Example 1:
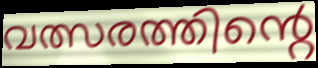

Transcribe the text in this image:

വത്സരത്തിന്റെ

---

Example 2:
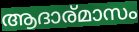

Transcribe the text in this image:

ആദാര്മാസം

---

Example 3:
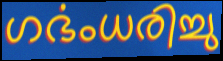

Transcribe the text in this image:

ഗൎഭംധരിച്ചു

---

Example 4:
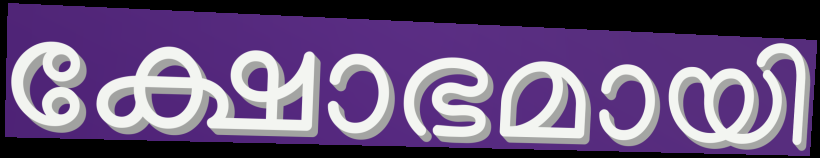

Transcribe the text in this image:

ക്ഷോഭമായി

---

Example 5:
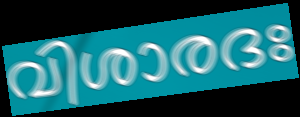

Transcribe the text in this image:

വിശാരദഃ